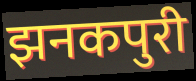
झनकपुरी